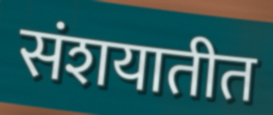
संशयातीत